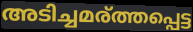
അടിച്ചമര്ത്തപ്പെട്ട